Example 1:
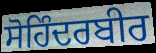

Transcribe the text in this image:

ਸੋਹਿੰਦਰਬੀਰ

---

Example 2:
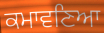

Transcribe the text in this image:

ਕਮਾਵਣਿਆ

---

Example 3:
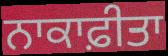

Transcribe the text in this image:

ਨਾਕਾਫ਼ੀਤਾ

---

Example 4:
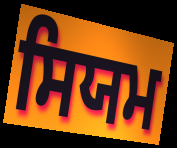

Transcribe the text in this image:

ਸਿਯਮ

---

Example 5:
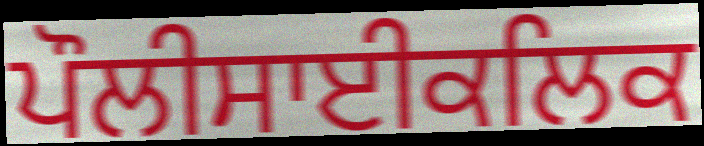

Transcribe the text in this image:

ਪੌਲੀਸਾਈਕਲਿਕ